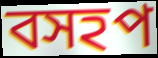
বসহপ